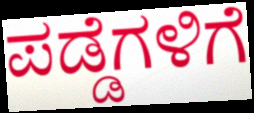
ಪಡ್ಡೆಗಳಿಗೆ